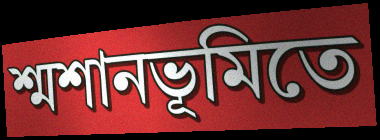
শ্মশানভূমিতে